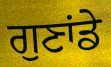
ਗੁਣਾਂਡੇ